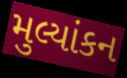
મુલ્યાંકન